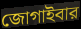
জোগাইবার